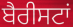
ਬੈਰੀਸਟਾਂ